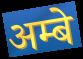
अम्बे